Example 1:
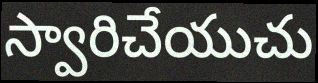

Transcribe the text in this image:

స్వారిచేయుచు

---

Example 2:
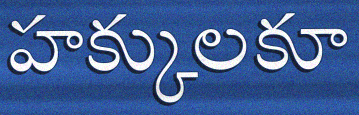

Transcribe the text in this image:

హక్కులకూ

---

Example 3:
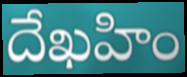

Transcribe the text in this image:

దేఖహిం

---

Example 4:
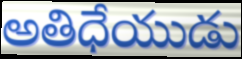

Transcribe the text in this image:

అతిధేయుడు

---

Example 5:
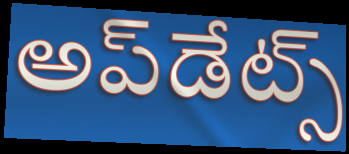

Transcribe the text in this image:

అప్‌డేట్స్